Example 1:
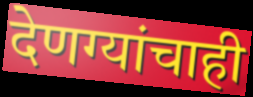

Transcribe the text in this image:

देणग्यांचाही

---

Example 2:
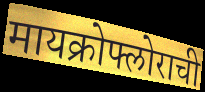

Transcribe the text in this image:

मायक्रोफ्लोराची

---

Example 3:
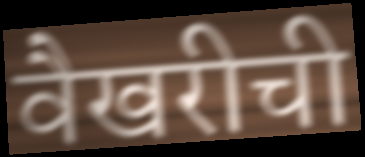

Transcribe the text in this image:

वैखरीची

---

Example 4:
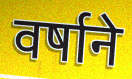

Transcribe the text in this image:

वर्षाने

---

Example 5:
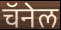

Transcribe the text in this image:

चॅनेल